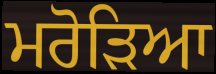
ਮਰੋੜਿਆ